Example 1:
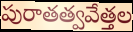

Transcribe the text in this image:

పురాతత్వవేత్తల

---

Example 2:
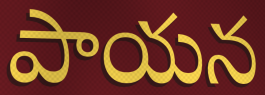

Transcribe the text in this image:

పాయన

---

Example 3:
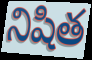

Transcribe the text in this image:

నిషిత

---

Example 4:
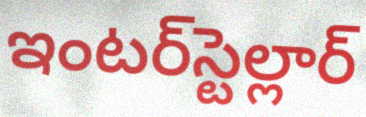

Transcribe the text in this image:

ఇంటర్‌స్టెల్లార్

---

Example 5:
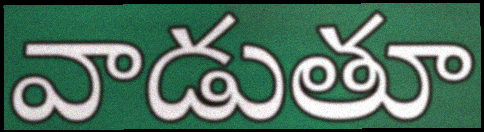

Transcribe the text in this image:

వాడుతూ